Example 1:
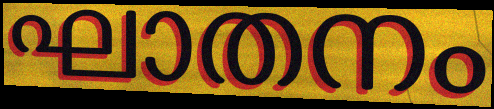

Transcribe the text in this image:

ഘാതനം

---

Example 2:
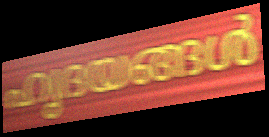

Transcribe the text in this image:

ഹൃദയങ്ങൾ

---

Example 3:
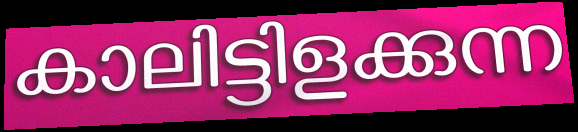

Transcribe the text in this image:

കാലിട്ടിളക്കുന്ന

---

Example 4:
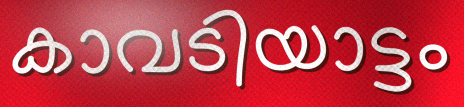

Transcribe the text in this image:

കാവടിയാട്ടം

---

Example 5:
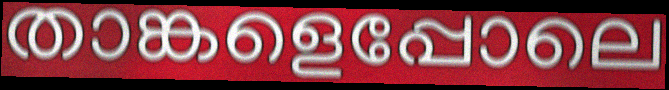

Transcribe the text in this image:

താങ്കളെപ്പോലെ